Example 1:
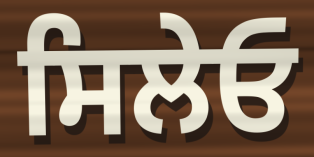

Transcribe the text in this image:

ਸਿਲੇਓ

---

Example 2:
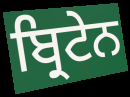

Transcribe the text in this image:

ਬ੍ਰਿਟੇਨ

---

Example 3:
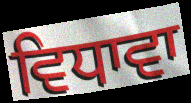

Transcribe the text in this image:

ਵਿਧਾਵਾ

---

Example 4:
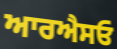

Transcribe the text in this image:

ਆਰਐਸਓ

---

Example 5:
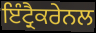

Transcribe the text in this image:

ਇੰਟ੍ਰੈਕਰੇਨਲ